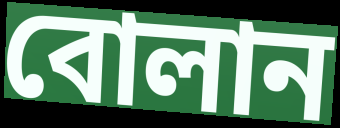
বোলান